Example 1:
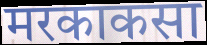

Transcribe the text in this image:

मरकाकसा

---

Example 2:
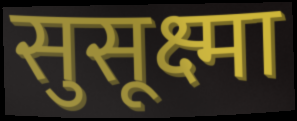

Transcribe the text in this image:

सुसूक्ष्मा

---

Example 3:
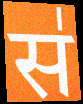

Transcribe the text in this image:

स॑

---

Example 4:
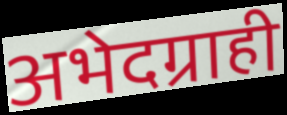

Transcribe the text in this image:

अभेदग्राही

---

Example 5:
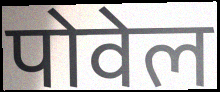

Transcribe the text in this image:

पोवेल